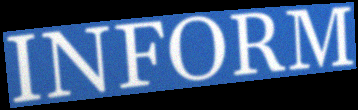
INFORM